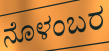
ನೊಳಂಬರ